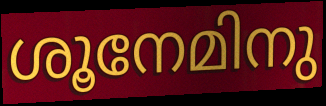
ശൂനേമിനു